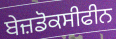
ਬੇਜ਼ਡੋਕਸੀਫੀਨ